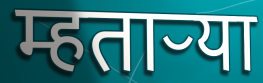
म्हताऱ्या